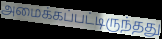
அமைக்கப்பட்டிருந்தது